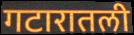
गटारातली